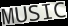
MUSIC